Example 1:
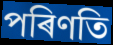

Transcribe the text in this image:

পৰিণতি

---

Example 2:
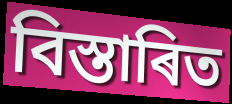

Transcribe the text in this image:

বিস্তাৰিত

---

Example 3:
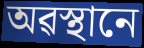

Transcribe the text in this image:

অৱস্থানে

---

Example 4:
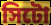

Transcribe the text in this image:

সিটো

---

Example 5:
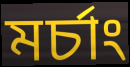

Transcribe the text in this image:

মৰ্চাং